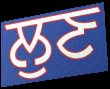
ਲੁਣ